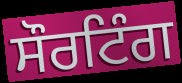
ਸੌਰਟਿੰਗ